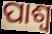
ପାଶ୍ୱ